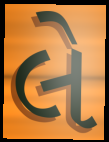
લે